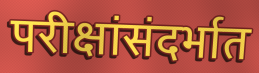
परीक्षांसंदर्भात